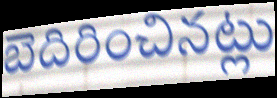
బెదిరించినట్లు